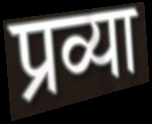
प्रव्या